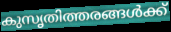
കുസൃതിത്തരങ്ങൾക്ക്